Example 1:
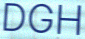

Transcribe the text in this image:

DGH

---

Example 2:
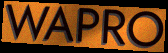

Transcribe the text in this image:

WAPRO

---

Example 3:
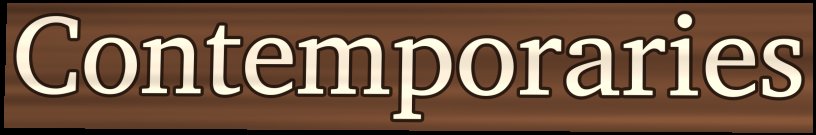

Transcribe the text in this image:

Contemporaries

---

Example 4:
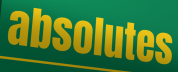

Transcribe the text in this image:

absolutes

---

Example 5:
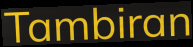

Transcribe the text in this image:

Tambiran